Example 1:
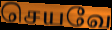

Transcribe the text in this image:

செயவே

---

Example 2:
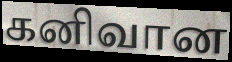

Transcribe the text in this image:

கனிவான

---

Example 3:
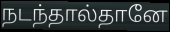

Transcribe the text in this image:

நடந்தால்தானே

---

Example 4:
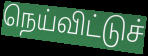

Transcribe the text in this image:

நெய்விட்டுச்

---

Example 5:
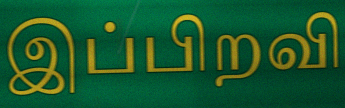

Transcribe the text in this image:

இப்பிறவி